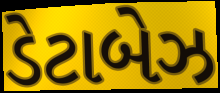
ડેટાબેઝ